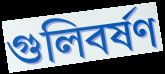
গুলিবৰ্ষণ